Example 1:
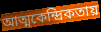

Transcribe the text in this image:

আত্মকেন্দ্রিকতায়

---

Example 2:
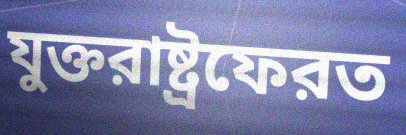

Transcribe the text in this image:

যুক্তরাষ্ট্রফেরত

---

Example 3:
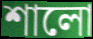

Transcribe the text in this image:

শালো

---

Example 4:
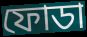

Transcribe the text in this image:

ফোডা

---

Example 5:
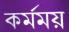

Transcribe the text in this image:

কর্মময়